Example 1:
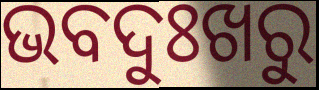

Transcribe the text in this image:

ଭବଦୁଃଖରୁ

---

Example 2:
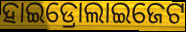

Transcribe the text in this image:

ହାଇଡ୍ରୋଲାଇଜେଟ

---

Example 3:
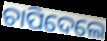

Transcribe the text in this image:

ଚାପିଦେଲେ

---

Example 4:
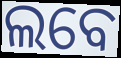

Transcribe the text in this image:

ଲବେ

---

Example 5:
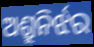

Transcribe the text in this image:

ଅଶ୍ରୁନିର୍ଝର